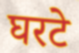
घरटे